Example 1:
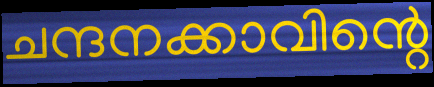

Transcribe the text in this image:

ചന്ദനക്കാവിന്റെ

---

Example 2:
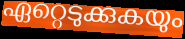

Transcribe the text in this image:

ഏറ്റെടുക്കുകയും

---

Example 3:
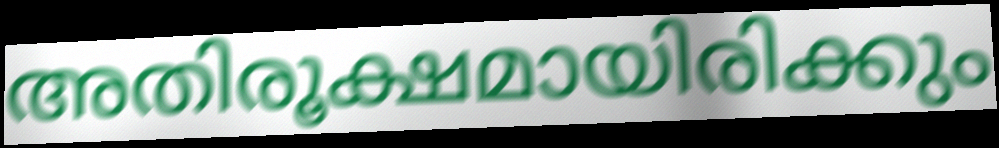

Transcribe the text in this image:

അതിരൂക്ഷമായിരിക്കും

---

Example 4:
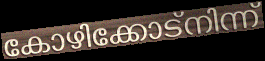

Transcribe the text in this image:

കോഴിക്കോട്നിന്ന്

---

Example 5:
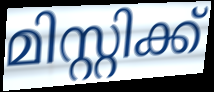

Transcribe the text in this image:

മിസ്റ്റിക്ക്